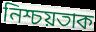
নিশ্চয়তাক